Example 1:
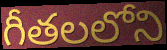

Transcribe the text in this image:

గీతలలోని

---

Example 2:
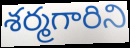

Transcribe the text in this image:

శర్మగారిని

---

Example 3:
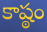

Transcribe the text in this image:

కాష్ఠం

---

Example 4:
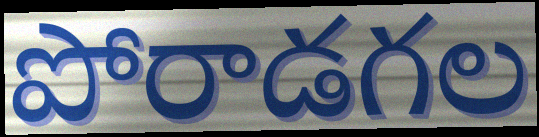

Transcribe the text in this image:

పోరాడగల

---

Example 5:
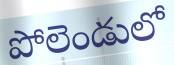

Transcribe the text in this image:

పోలెండులో